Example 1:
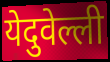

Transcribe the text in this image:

येदुवेल्ली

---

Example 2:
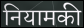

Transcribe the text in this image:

नियामकी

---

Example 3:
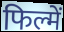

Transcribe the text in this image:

फिल्‍में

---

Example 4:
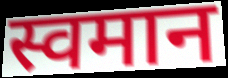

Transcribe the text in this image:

स्वमान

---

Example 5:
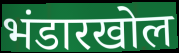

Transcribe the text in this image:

भंडारखोल